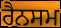
ਰੈਨਸਮ